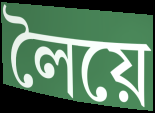
লৈয়ে